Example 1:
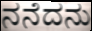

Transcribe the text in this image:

ನನೆದನು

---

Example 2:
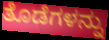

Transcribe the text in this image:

ತೊಡೆಗಳನ್ನು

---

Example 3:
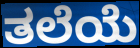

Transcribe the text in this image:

ತಲೆಯೆ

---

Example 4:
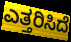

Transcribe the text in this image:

ಎತ್ತರಿಸಿದೆ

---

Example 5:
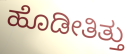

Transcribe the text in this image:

ಹೊಡೀತಿತ್ತು